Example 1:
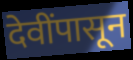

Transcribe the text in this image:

देवींपासून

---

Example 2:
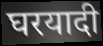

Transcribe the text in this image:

घरयादी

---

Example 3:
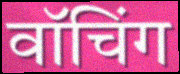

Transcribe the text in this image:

वॉचिंग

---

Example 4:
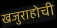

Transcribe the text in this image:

खजुराहोची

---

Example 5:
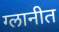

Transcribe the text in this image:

ग्लानीत